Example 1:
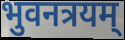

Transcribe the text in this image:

भुवनत्रयम्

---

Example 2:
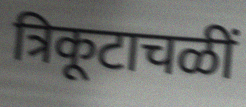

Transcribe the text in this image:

त्रिकूटाचळीं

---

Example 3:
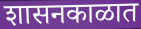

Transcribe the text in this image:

शासनकाळात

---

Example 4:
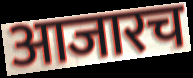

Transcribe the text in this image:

आजारच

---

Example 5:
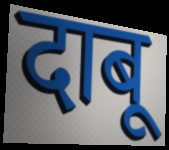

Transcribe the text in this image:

दाबू